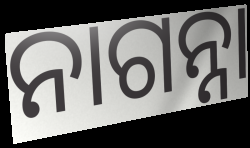
ନାଗନ୍ନା